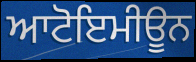
ਆਟੋਇਮੀਊਨ